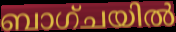
ബാഗ്ചയിൽ